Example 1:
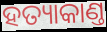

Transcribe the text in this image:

ହତ୍ୟାକାଣ୍ତ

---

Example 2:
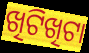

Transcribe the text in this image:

ଖିଟିଖିଟା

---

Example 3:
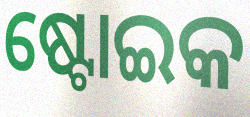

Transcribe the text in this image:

ଷ୍ଟୋଇକ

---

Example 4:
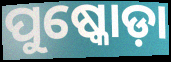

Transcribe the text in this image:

ପୁଷ୍କୋଡ଼ା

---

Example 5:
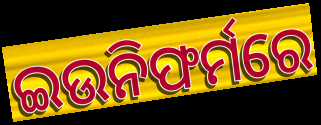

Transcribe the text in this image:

ଇଉନିଫର୍ମରେ